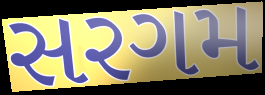
સરગમ